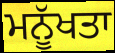
ਮਨੂੱਖਤਾ